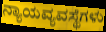
ನ್ಯಾಯವ್ಯವಸ್ಥೆಗಳು